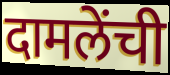
दामलेंची